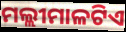
ମଲ୍ଲୀମାଳଟିଏ